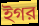
ইগর